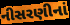
નીસરણીનાં